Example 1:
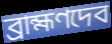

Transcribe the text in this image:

ব্রাহ্মণদেব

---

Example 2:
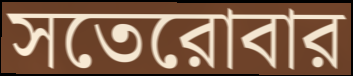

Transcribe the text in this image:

সতেরোবার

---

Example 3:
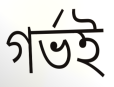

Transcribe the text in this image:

গর্ভই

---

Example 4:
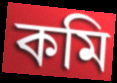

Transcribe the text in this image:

কমি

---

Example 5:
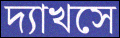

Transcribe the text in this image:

দ্যাখসে